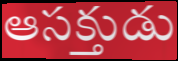
ఆసక్తుడు